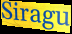
Siragu